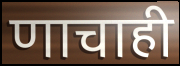
णाचाही